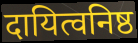
दायित्वनिष्ठ